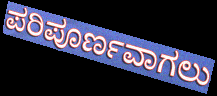
ಪರಿಪೂರ್ಣವಾಗಲು